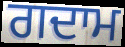
ਗਦਾਮ